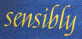
sensibly